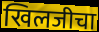
खिलजीचा